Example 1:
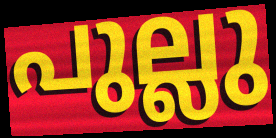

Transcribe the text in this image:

പുല്ലു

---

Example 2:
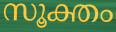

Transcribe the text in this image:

സൂക്തം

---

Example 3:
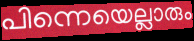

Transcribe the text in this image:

പിന്നെയെല്ലാരും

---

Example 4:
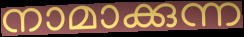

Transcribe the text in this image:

നാമാക്കുന്ന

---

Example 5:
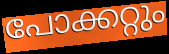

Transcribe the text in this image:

പോക്കറ്റും